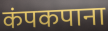
कंपकपाना